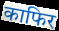
काफिर